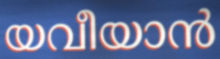
യവീയാൻ